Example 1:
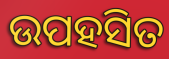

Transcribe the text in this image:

ଉପହସିତ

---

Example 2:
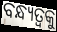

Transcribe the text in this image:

ବନ୍ଧ୍ୟତ୍ୱକୁ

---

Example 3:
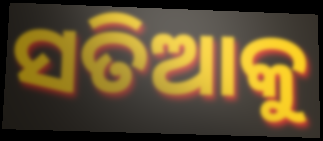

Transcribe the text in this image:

ସତିଆକୁ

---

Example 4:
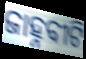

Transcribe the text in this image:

ଜାହ୍ନବୀଟି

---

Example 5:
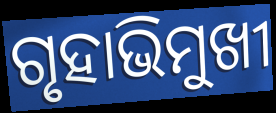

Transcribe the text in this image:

ଗୃହାଭିମୁଖୀ